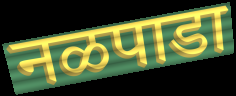
नळपाडा